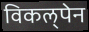
विकल्पेन